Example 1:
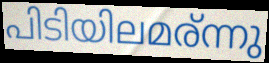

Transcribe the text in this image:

പിടിയിലമര്ന്നു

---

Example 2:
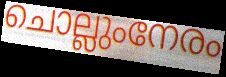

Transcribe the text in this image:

ചൊല്ലുംനേരം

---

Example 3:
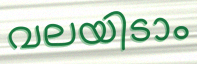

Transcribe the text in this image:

വലയിടാം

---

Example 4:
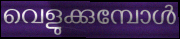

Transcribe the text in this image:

വെളുക്കുമ്പോൾ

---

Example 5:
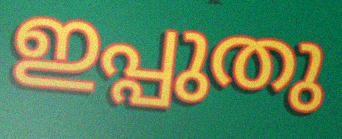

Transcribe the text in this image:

ഇപ്പുതു